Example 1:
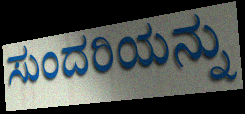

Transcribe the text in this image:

ಸುಂದರಿಯನ್ನು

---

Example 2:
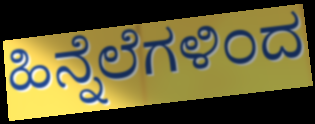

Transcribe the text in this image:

ಹಿನ್ನೆಲೆಗಳಿಂದ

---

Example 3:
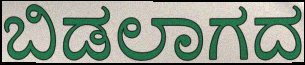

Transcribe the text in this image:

ಬಿಡಲಾಗದ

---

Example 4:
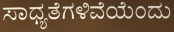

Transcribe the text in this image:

ಸಾಧ್ಯತೆಗಳಿವೆಯೆಂದು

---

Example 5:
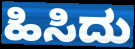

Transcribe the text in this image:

ಹಿಸಿದು